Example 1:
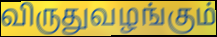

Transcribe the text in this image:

விருதுவழங்கும்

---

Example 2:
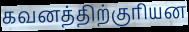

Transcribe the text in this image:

கவனத்திற்குரியன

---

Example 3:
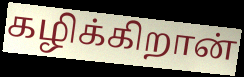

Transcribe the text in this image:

கழிக்கிறான்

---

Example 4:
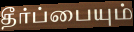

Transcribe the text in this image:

தீர்ப்பையும்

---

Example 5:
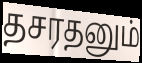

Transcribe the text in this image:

தசரதனும்